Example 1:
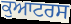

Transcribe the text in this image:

ਕੁਆਟਰਸ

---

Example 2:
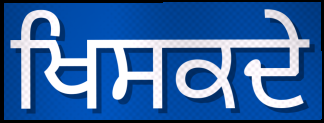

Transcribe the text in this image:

ਖਿਸਕਦੇ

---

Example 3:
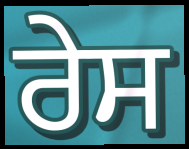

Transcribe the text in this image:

ਰੇਸ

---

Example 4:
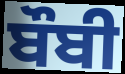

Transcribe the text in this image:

ਬੌਬੀ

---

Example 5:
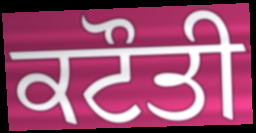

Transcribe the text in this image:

ਕਟੌਤੀ